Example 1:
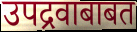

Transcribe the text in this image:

उपद्रवाबाबत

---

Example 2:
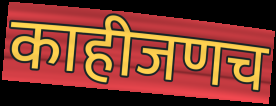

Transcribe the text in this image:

काहीजणच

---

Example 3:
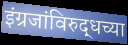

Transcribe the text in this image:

इंग्रजांविरुद्धच्या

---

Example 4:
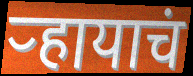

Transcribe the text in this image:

ऱ्हायाचं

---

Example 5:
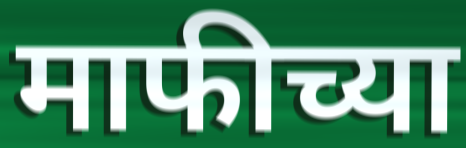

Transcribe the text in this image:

माफीच्या